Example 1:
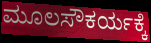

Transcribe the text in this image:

ಮೂಲಸೌಕರ್ಯಕ್ಕೆ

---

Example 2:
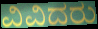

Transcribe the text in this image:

ವಿವಿದರು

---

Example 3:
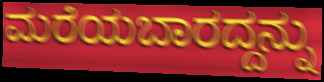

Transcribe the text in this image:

ಮರೆಯಬಾರದ್ದನ್ನು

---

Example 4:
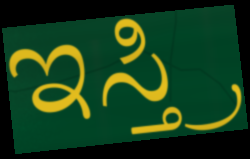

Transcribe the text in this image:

ಇಸ್ತ್ರಿ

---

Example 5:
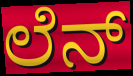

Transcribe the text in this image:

ಲೆನ್